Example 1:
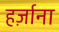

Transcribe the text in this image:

हर्ज़ाना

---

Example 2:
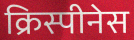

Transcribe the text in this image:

क्रिस्पीनेस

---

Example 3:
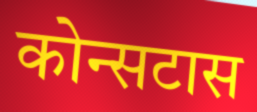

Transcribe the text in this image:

कोन्सटास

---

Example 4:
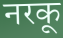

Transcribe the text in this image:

नरकू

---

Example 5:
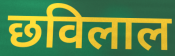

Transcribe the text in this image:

छविलाल